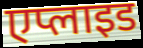
एप्लाइड